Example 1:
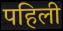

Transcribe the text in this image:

पहिली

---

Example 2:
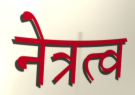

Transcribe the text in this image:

नेत्रत्व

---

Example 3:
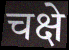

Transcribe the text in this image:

चक्षे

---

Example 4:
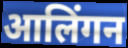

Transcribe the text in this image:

आलिंगन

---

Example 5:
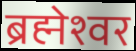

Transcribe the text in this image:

ब्रह्मेश्वर